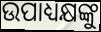
ଉପାଧ୍ୟକ୍ଷଙ୍କୁ